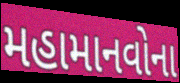
મહામાનવોના